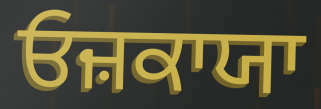
ਓਜ਼ਕਾਯਾ